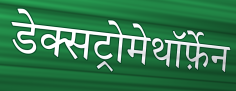
डेक्सट्रोमेथॉर्फ़ेन